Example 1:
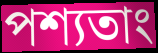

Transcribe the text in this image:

পশ্যতাং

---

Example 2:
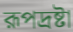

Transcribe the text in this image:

রূপদ্রষ্টা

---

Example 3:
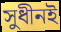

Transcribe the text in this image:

সুধীনই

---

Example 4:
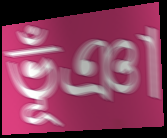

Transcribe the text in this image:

ভূঁঞা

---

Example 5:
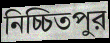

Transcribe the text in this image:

নিচ্চিতপুর